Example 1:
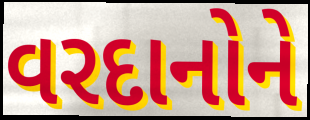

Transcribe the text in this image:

વરદાનોને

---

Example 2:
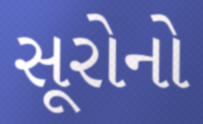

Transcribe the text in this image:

સૂરોનો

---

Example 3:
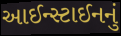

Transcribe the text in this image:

આઈન્સ્ટાઈનનું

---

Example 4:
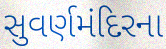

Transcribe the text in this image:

સુવર્ણમંદિરના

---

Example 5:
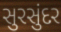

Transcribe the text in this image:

સુરસુંદર